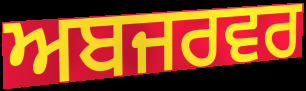
ਅਬਜਰਵਰ